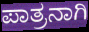
ಪಾತ್ರನಾಗಿ